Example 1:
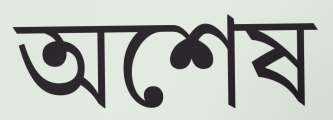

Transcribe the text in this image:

অশেষ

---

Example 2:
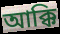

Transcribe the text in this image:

আক্কি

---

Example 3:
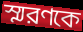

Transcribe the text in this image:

স্মরণকে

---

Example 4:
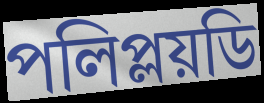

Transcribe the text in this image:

পলিপ্লয়ডি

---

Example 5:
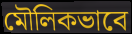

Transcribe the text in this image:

মৌলিকভাবে